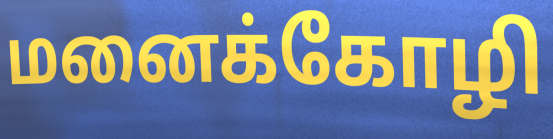
மனைக்கோழி